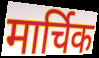
मार्चिक